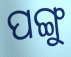
ପଙ୍ଗୁ